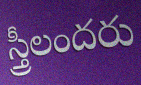
స్త్రీలందరు